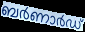
ബർണാർഡ്